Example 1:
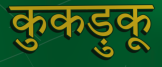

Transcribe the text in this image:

कुकड़ुकू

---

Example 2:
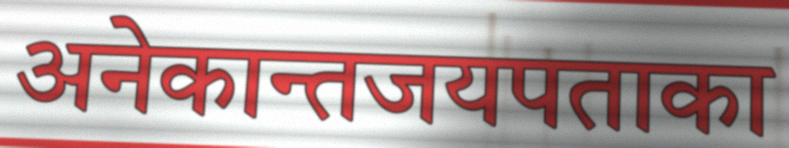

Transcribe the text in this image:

अनेकान्तजयपताका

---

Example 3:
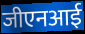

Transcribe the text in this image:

जीएनआई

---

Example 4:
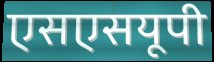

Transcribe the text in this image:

एसएसयूपी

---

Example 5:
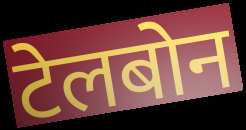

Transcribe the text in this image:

टेलबोन